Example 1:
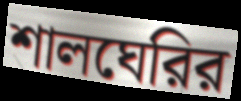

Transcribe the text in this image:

শালঘেরির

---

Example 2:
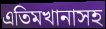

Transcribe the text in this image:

এতিমখানাসহ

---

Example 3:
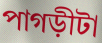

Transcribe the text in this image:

পাগড়ীটা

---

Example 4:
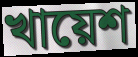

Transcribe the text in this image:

খায়েশ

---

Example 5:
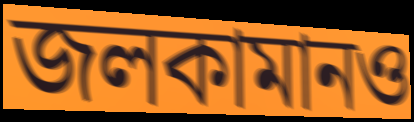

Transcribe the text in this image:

জলকামানও